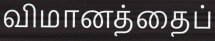
விமானத்தைப்